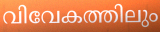
വിവേകത്തിലും